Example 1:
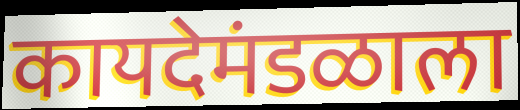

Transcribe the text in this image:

कायदेमंडळाला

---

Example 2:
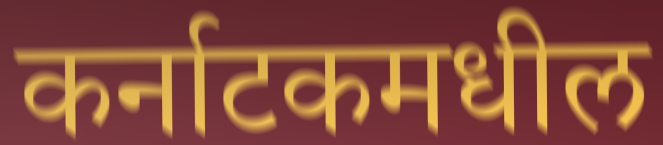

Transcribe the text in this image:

कर्नाटकमधील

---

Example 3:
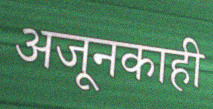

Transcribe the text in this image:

अजूनकाही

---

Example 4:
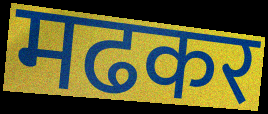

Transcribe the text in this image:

मढकर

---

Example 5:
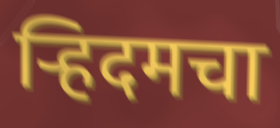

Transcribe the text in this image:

ऱ्हिदमचा